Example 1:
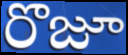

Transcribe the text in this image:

రొజూ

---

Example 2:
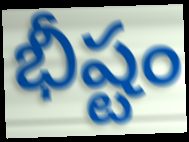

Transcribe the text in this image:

భీష్టం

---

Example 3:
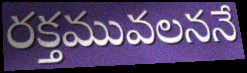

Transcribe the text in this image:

రక్తమువలననే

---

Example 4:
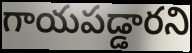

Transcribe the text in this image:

గాయపడ్డారని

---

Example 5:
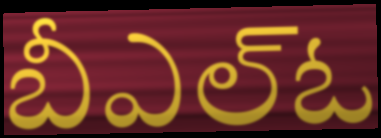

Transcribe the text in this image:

బీఎల్ఓ